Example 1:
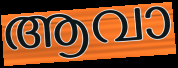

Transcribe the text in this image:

ആവാ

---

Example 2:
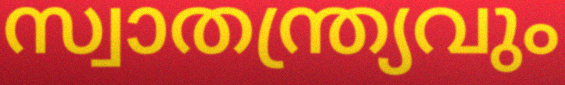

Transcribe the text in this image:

സ്വാതന്ത്ര്യവും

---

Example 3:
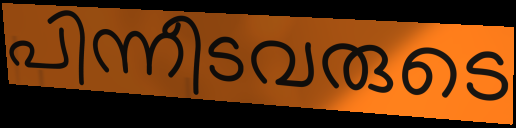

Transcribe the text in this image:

പിന്നീടവരുടെ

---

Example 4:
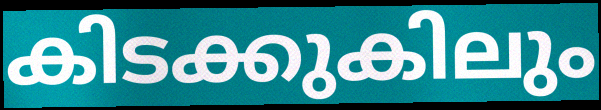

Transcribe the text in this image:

കിടക്കുകിലും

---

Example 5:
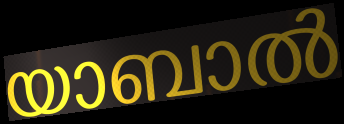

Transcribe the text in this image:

യാബാൽ